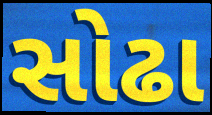
સોઢા